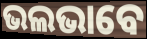
ଭଲଭାବେ